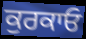
ਕੁਰਕਾਓ